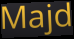
Majd